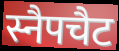
स्नैपचैट